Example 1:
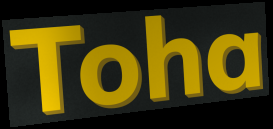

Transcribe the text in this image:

Toha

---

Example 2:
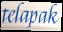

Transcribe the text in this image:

telapak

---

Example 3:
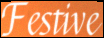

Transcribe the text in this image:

Festive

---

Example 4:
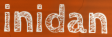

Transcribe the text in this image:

inidan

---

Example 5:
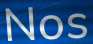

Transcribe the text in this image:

Nos